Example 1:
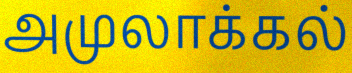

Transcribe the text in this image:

அமுலாக்கல்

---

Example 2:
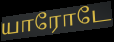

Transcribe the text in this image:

யாரோடே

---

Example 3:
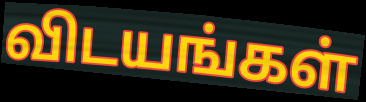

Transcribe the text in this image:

விடயங்கள்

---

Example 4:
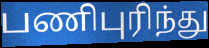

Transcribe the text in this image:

பணிபுரிந்து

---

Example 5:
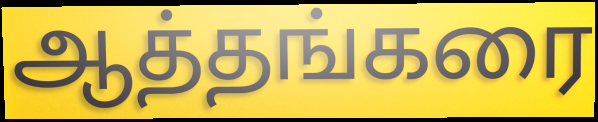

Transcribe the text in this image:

ஆத்தங்கரை